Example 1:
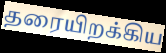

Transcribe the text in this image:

தரையிறக்கிய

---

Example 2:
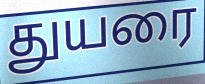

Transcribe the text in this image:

துயரை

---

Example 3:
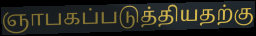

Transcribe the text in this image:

ஞாபகப்படுத்தியதற்கு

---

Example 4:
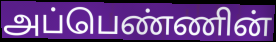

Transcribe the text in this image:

அப்பெண்ணின்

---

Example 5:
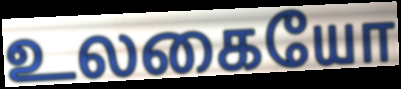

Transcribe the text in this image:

உலகையோ